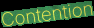
Contention